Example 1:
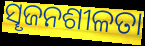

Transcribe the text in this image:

ସୄଜନଶୀଳତା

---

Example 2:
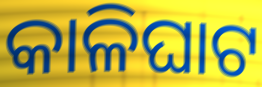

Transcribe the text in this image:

କାଳିଘାଟ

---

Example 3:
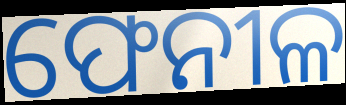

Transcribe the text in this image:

ଫେନୀଳ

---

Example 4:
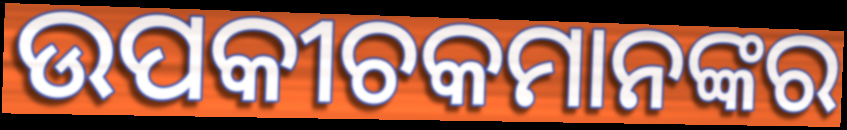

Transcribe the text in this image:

ଉପକୀଚକମାନଙ୍କର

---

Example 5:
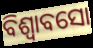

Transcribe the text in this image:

ବିଶ୍ୱାବସୋ